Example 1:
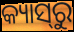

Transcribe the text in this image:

କ୍ୟାସ୍‌ରୁ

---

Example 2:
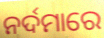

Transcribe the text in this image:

ନର୍ଦମାରେ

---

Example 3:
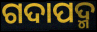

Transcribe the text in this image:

ଗଦାପଦ୍ମ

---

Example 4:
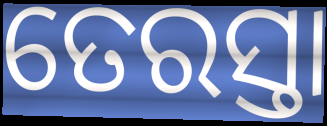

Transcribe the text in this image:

ତେରସ୍ତା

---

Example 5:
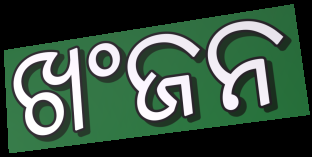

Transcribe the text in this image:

ଖଂଜନ